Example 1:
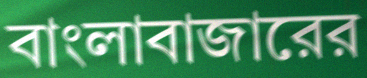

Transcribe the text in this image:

বাংলাবাজারের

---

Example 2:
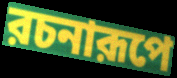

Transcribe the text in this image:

রচনারূপে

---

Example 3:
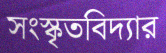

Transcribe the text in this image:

সংস্কৃতবিদ্যার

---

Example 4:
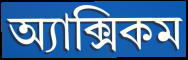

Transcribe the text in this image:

অ্যাক্সিকম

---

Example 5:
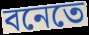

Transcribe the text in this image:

বনেতে